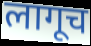
लागूच